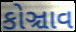
કોઞ્ચાવ